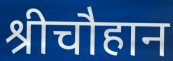
श्रीचौहान